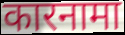
कारनामा